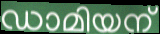
ഡാമിയന്